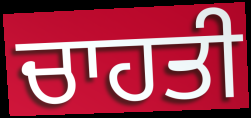
ਚਾਹਤੀ